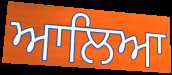
ਆਲਿਆ